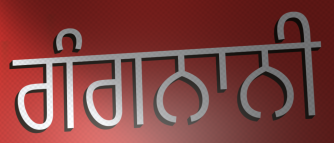
ਗੰਗਨਾਨੀ